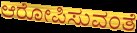
ಆರೋಪಿಸುವಂತೆ